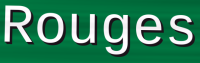
Rouges